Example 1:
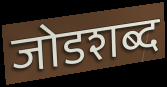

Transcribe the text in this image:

जोडशब्द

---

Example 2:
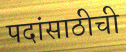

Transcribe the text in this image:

पदांसाठीची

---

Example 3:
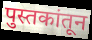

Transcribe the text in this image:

पुस्तकांतून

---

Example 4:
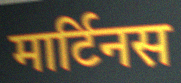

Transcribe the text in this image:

मार्टिनस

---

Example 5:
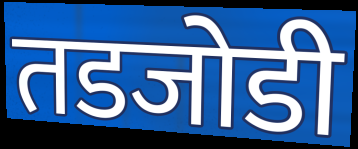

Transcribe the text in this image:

तडजोडी